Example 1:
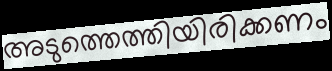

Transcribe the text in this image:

അടുത്തെത്തിയിരിക്കണം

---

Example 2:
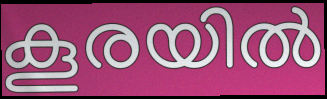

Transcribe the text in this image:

കൂരയിൽ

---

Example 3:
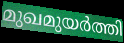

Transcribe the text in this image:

മുഖമുയർത്തി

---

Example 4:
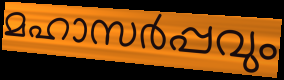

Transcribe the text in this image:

മഹാസർപ്പവും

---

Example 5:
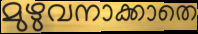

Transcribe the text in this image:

മുഴുവനാക്കാതെ